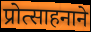
प्रोत्साहनाने